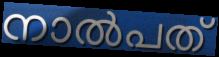
നാൽപത്